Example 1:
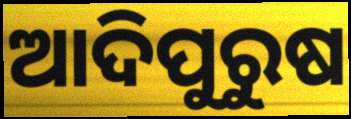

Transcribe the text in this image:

ଆଦିପୁରୁଷ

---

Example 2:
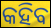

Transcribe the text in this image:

କହିବ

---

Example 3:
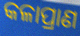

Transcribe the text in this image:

କଳାପ୍ରାଣ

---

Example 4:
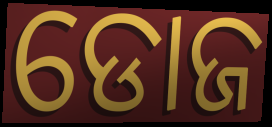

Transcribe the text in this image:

ଡୋଜ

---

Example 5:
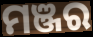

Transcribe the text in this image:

ମଞ୍ଜର